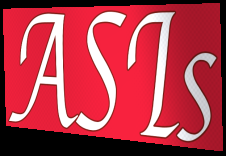
ASIs